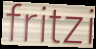
fritzi